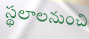
స్థలాలనుంచి